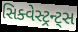
સિક્વેસ્ટ્રન્ટ્સ